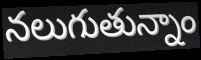
నలుగుతున్నాం